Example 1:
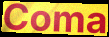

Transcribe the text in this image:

Coma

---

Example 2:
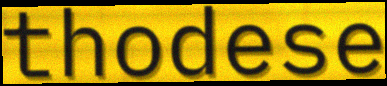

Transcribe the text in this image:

thodese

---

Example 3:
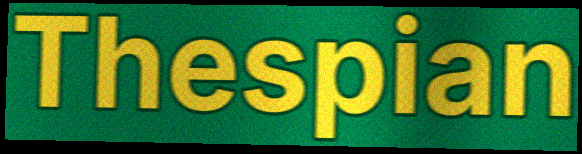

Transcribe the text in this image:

Thespian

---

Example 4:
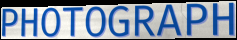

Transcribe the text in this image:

PHOTOGRAPH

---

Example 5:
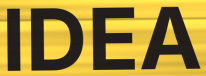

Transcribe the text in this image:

IDEA